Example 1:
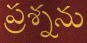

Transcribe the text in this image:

ప్రశ్నను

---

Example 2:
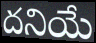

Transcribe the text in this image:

దనియే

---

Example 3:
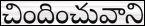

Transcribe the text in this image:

చిందించువాని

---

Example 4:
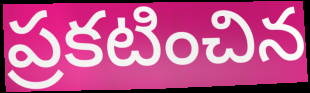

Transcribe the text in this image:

ప్రకటించిన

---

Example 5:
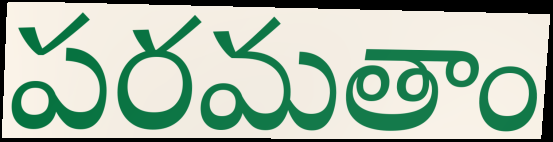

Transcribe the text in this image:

పరమతాం